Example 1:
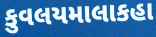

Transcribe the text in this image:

કુવલયમાલાકહા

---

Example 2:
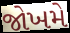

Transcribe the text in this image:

જોખમે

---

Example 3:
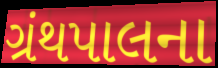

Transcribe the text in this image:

ગ્રંથપાલના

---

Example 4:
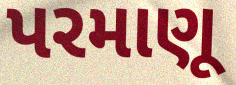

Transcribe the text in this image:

પરમાણૂ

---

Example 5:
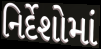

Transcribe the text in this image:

નિર્દેશોમાં